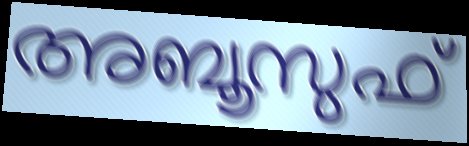
അബൂസുഫ്